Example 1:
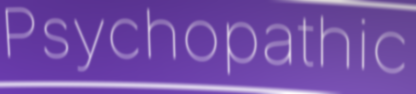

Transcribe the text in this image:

Psychopathic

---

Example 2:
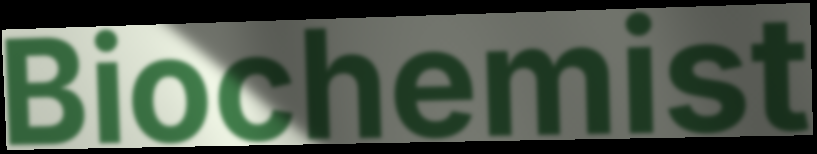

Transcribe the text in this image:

Biochemist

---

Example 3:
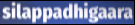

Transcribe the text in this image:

silappadhigaara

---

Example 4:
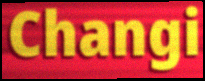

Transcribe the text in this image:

Changi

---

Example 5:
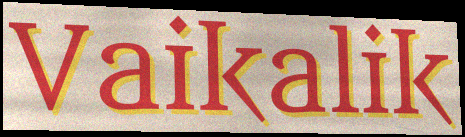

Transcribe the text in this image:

Vaikalik